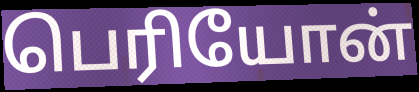
பெரியோன்